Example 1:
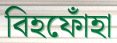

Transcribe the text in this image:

বিহফোঁহা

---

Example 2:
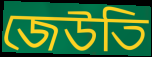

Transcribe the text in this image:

জেউতি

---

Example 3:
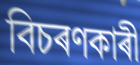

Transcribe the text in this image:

বিচৰণকাৰী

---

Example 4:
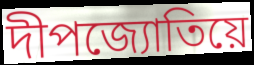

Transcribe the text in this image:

দীপজ্যোতিয়ে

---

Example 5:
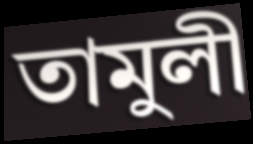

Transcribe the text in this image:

তামুলী